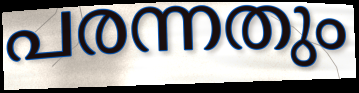
പരന്നതും